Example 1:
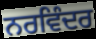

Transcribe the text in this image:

ਨਰਵਿੰਦਰ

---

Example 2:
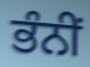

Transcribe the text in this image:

ਭੰਨੀਂ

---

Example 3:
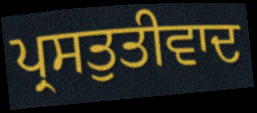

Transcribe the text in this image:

ਪ੍ਰਸਤੁਤੀਵਾਦ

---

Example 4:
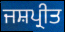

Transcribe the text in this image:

ਜਸ਼ਪ੍ਰੀਤ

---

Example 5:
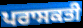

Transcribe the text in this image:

ਪਰਾਸਕਤੀ